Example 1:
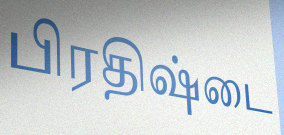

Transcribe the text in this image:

பிரதிஷ்டை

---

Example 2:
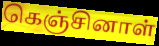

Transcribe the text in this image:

கெஞ்சினாள்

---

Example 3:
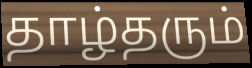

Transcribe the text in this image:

தாழ்தரும்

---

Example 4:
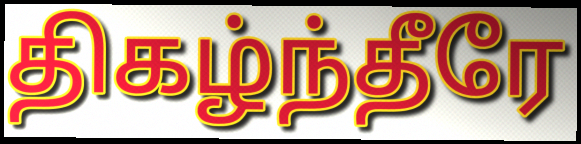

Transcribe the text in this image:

திகழ்ந்தீரே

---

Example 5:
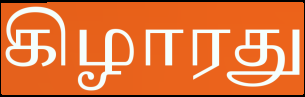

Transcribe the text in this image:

கிழாரது